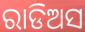
ରାଡିଅସ